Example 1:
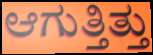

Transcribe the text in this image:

ಆಗುತ್ತಿತ್ತು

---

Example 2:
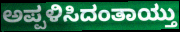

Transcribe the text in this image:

ಅಪ್ಪಳಿಸಿದಂತಾಯ್ತು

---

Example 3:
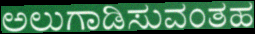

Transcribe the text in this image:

ಅಲುಗಾಡಿಸುವಂತಹ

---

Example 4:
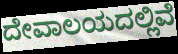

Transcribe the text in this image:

ದೇವಾಲಯದಲ್ಲಿವೆ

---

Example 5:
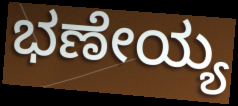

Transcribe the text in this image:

ಭಣೇಯ್ಯ